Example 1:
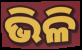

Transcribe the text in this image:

ଭିଳି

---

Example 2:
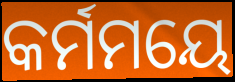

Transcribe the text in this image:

କର୍ମମୟେ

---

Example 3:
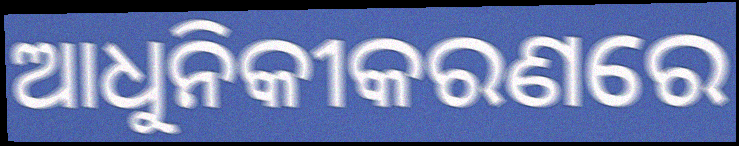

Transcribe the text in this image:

ଆଧୁନିକୀକରଣରେ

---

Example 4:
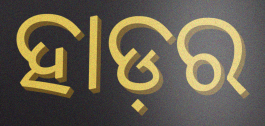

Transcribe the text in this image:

ହାଡ଼ର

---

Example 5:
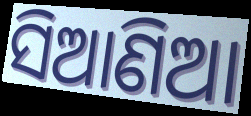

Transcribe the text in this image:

ସିଆଣିଆ